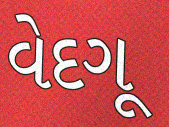
વેદગૂ